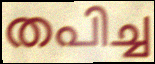
തപിച്ച